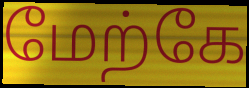
மேற்கே